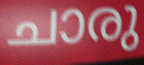
ചാരു